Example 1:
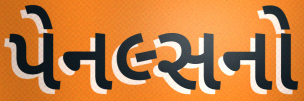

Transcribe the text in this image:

પેનલ્સનો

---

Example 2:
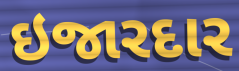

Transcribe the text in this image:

ઇજારદાર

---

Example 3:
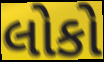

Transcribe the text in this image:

લોકો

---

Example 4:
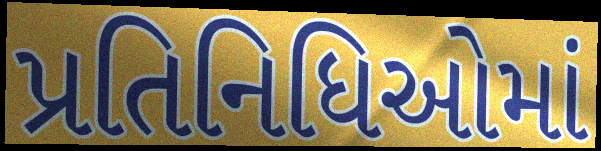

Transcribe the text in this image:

પ્રતિનિધિઓમાં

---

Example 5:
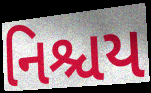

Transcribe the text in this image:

નિશ્ચય